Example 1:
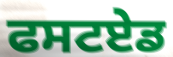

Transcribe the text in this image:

ਫਸਟਏਡ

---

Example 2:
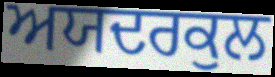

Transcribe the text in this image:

ਅਯਦਰਕੁਲ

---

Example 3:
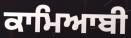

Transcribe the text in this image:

ਕਾਮਿਆਬੀ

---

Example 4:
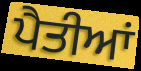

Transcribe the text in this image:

ਪੈਤੀਆਂ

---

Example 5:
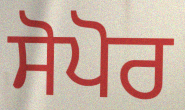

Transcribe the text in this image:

ਸੋਪੋਰ